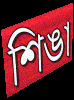
শিঙা